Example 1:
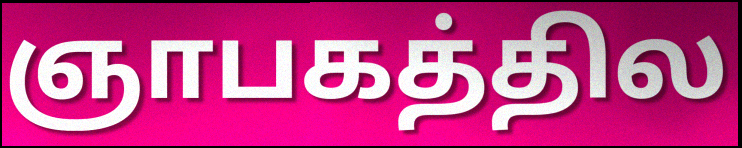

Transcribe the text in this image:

ஞாபகத்தில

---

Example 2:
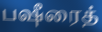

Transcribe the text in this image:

பஷீரைத்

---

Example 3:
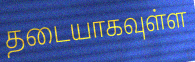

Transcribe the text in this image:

தடையாகவுள்ள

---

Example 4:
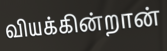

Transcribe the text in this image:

வியக்கின்றான்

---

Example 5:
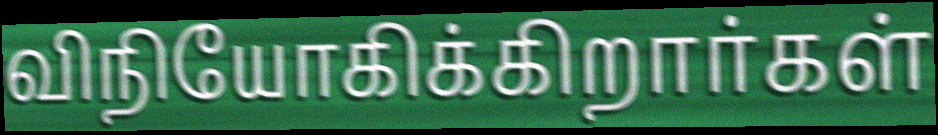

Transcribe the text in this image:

விநியோகிக்கிறார்கள்